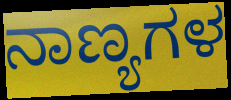
ನಾಣ್ಯಗಳ